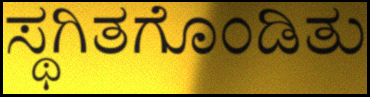
ಸ್ಥಗಿತಗೊಂಡಿತು